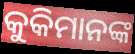
କୁକିମାନଙ୍କ